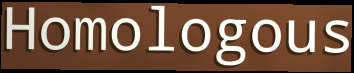
Homologous